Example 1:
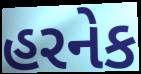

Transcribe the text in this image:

હરનેક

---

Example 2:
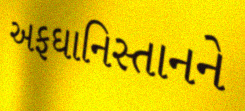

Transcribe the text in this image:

અફઘાનિસ્તાનને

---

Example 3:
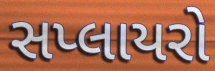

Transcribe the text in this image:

સપ્લાયરો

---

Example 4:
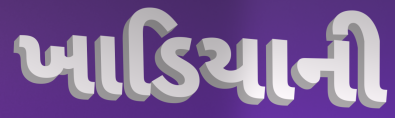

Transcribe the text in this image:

ખાડિયાની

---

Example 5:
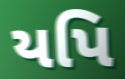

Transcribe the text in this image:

યપિ